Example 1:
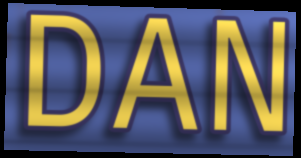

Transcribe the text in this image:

DAN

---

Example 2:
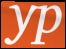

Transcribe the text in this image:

yp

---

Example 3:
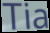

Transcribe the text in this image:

Tia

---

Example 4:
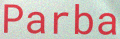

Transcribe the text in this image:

Parba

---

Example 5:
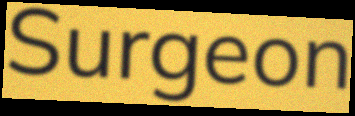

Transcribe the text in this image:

Surgeon